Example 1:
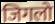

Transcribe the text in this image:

जिगलो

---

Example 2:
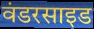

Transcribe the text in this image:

वंडरसाइड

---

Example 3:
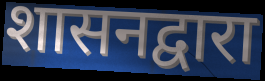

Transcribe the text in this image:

शासनद्वारा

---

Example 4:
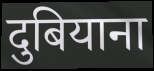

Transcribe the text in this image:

दुबियाना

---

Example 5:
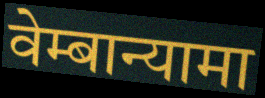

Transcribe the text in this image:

वेम्बान्यामा